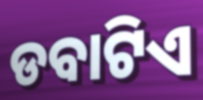
ଡବାଟିଏ